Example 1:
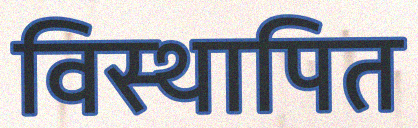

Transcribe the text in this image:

विस्थापित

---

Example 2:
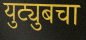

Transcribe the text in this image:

युट्युबचा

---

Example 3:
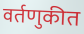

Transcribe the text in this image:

वर्तणुकीत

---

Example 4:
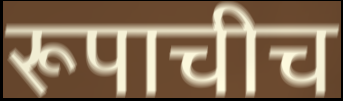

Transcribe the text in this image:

रूपाचीच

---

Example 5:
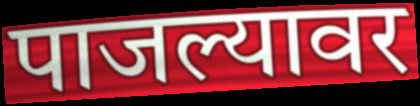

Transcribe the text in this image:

पाजल्यावर